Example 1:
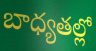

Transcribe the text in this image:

బాధ్యతల్లో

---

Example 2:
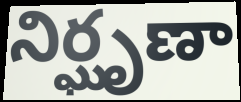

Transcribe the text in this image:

నిర్ఘృణా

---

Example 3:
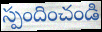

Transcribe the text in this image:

స్పందించండి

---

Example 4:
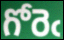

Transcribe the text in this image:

గోరెఁ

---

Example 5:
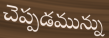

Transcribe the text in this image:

చెప్పడమున్ను